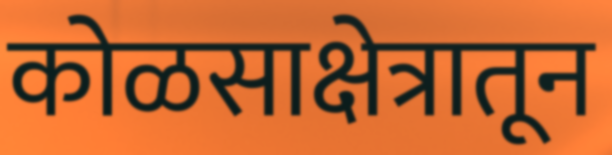
कोळसाक्षेत्रातून